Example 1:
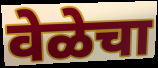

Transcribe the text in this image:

वेळेचा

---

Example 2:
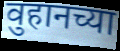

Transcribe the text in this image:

वुहानच्या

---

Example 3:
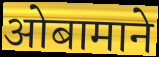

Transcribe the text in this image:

ओबामाने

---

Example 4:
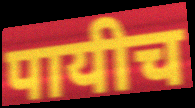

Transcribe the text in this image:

पायीच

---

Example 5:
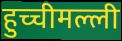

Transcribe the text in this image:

हुच्चीमल्ली